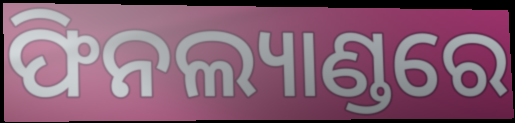
ଫିନଲ୍ୟାଣ୍ଡରେ